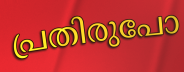
പ്രതിരുപോ